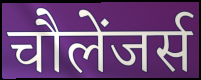
चौलेंजर्स